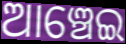
ଆଞ୍ଚେଇ